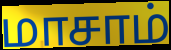
மாசாம்